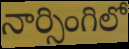
నార్సింగిలో